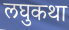
लघुकथा